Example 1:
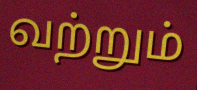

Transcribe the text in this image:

வற்றும்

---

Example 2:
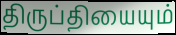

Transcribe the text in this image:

திருப்தியையும்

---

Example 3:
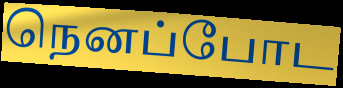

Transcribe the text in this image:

நெனப்போட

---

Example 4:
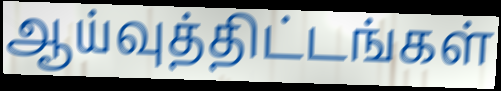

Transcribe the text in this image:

ஆய்வுத்திட்டங்கள்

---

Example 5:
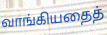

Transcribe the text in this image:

வாங்கியதைத்